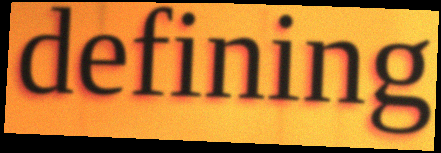
defining